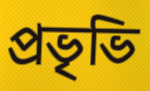
প্রভৃভি